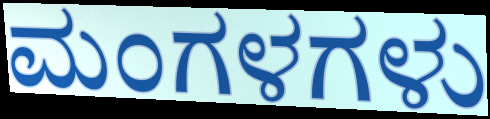
ಮಂಗಳಗಳು